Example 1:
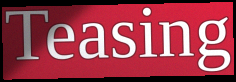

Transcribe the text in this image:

Teasing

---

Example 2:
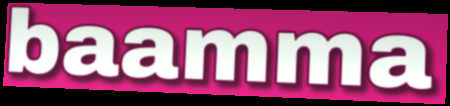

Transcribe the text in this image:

baamma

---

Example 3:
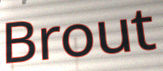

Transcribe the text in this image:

Brout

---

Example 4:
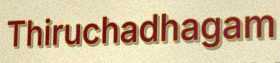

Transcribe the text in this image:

Thiruchadhagam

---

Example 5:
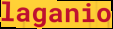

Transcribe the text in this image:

laganio